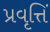
પ્રવૃત્તિં